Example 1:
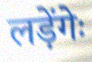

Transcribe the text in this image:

लड़ेंगेः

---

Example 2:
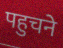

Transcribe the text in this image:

पहुचने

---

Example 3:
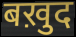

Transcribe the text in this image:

बख़ुद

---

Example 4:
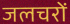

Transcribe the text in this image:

जलचरों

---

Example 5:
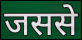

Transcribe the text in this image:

जससे